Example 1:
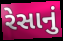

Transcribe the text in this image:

રેસાનું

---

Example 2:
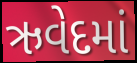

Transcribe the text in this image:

ઋવેદમાં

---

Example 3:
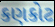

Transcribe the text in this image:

કણકોટ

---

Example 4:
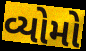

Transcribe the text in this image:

વ્યોમો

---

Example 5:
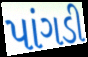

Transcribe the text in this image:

પાંગડી